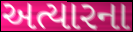
અત્યારના